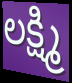
లక్ష్మి